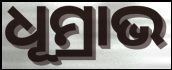
ଧୂମ୍ରାଭ